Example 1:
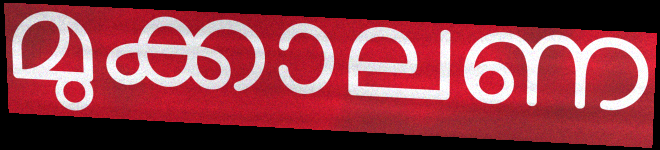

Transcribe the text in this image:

മുക്കാലണ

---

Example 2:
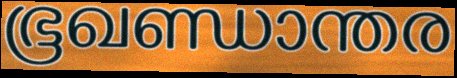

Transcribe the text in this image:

ഭൂഖണ്ഡാന്തര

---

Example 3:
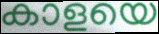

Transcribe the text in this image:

കാളയെ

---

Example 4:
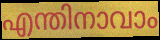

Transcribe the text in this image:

എന്തിനാവാം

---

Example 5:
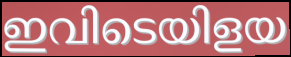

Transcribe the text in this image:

ഇവിടെയിളയ